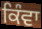
ਕਿੰਵਾ